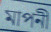
মাপনী